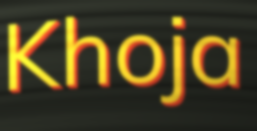
Khoja